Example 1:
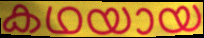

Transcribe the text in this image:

കഥയായ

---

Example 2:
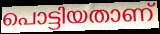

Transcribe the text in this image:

പൊട്ടിയതാണ്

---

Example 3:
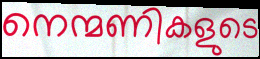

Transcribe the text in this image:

നെന്മണികളുടെ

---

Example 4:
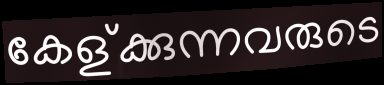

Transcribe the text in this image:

കേള്ക്കുന്നവരുടെ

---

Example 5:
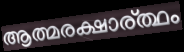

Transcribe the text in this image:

ആത്മരക്ഷാര്ത്ഥം